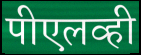
पीएलव्ही